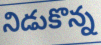
నిడుకొన్న